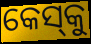
କେସ୍‌କୁ